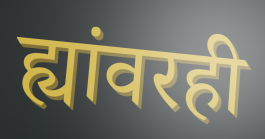
ह्यांवरही